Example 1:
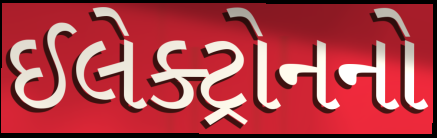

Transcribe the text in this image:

ઈલેક્ટ્રોનનો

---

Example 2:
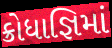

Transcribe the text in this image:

ક્રોધાજ્ઞિમાં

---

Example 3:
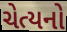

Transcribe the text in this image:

ચેત્યનો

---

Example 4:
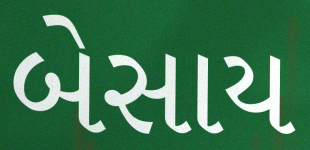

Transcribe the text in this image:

બેસાય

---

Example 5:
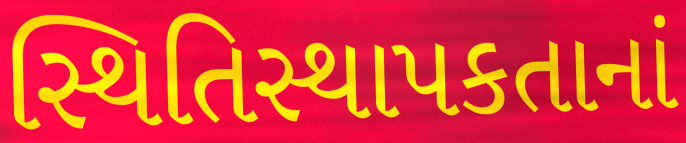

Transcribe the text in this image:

સ્થિતિસ્થાપકતાનાં